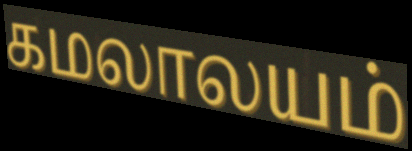
கமலாலயம்